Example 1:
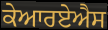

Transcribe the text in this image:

ਕੇਆਰਏਐਸ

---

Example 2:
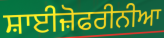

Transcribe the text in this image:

ਸ਼ਾਈਜ਼ੋਫਰੀਨੀਆ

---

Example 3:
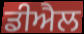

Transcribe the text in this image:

ਡੀਐਲ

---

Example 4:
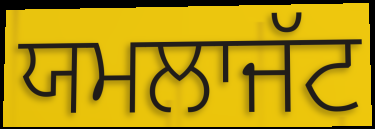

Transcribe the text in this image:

ਯਮਲਾਜੱਟ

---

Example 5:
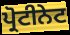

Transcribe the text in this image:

ਪ੍ਰੋਟੀਨੇਟ